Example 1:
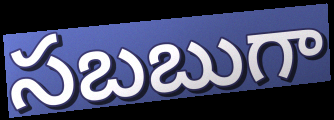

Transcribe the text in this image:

సబబుగా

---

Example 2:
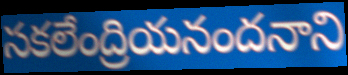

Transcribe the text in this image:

సకలేంద్రియనందనాని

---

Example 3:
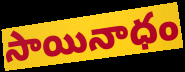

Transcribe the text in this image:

సాయినాధం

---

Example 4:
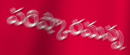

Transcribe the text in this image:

పరిష్కారమన్న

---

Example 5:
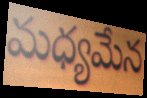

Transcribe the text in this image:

మధ్యమేన